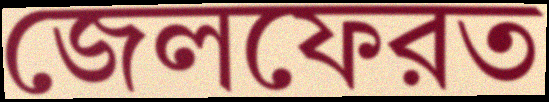
জেলফেরত